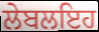
ਲੇਬਲਇਹ